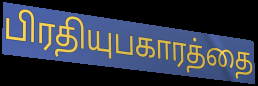
பிரதியுபகாரத்தை